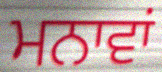
ਮਨਾਵਾਂ